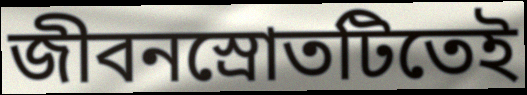
জীবনস্রোতটিতেই